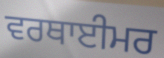
ਵਰਥਾਈਮਰ